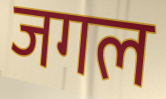
जगल